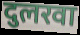
दुलरवा